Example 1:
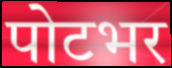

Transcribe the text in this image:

पोटभर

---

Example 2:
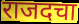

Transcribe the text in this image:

राजदचा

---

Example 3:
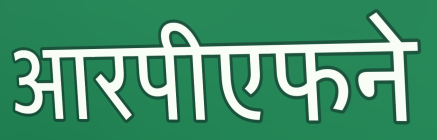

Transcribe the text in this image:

आरपीएफने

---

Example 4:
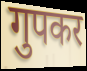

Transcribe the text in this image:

गुपकर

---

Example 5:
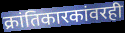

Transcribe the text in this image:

क्रांतिकारकांवरही